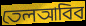
তেলআবিব